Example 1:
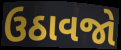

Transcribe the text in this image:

ઉઠાવજો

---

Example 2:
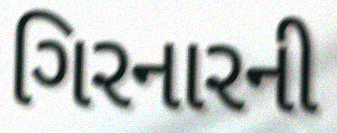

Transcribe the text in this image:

ગિરનારની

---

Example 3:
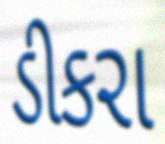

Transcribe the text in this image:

ડીકરા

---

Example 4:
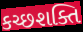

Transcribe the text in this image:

કચ્છશક્તિ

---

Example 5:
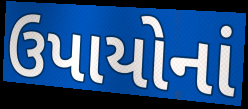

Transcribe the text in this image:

ઉપાયોનાં